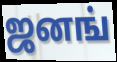
ஜனங்